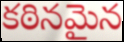
కఠినమైన